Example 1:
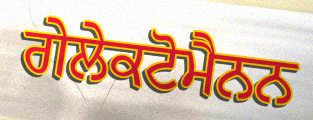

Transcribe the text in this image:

ਗੇਲੇਕਟੋਮੈਨਨ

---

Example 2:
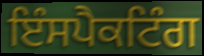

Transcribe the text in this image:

ਇੰਸਪੈਕਟਿੰਗ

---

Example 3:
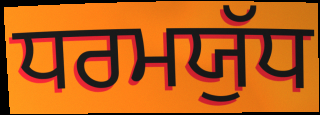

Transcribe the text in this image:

ਧਰਮਯੁੱਧ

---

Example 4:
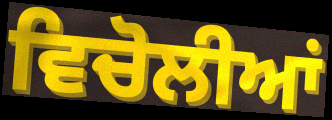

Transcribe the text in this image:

ਵਿਚੋਲੀਆਂ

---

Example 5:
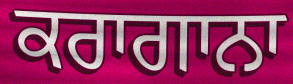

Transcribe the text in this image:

ਕਰਾਗਾਨਾ